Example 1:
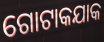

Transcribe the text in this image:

ଗୋଟାକଯାକ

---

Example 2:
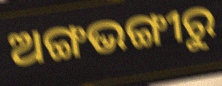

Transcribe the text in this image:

ଅଙ୍ଗଭଙ୍ଗୀରୁ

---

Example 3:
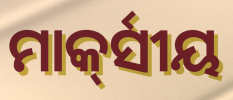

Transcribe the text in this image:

ମାର୍କ୍‍ସୀୟ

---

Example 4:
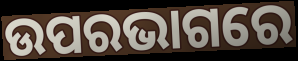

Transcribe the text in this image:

ଉପରଭାଗରେ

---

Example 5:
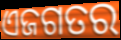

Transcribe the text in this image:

ଏଜଗତର